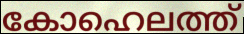
കോഹെലത്ത്